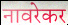
नावरेकर